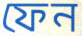
ফেন